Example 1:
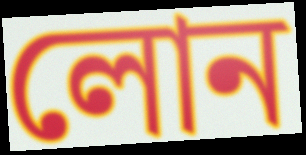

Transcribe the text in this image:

লোন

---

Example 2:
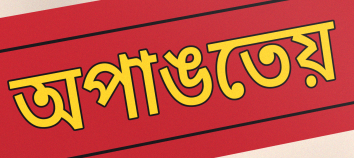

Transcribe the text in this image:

অপাঙতেয়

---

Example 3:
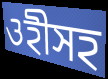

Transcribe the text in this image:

ওহীসহ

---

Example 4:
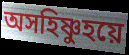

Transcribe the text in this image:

অসহিষ্ণুহয়ে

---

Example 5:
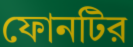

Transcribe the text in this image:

ফোনটির